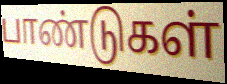
பாண்டுகள்